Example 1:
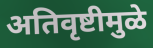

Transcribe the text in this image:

अतिवृष्टीमुळे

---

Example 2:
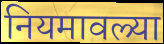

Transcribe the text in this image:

नियमावल्या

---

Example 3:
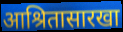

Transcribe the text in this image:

आश्रितासारखा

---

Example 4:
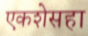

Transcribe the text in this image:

एकशेसहा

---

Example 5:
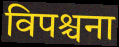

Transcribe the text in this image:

विपश्चना